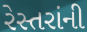
રેસ્તરાંની